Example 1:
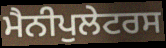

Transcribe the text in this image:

ਮੈਨੀਪੁਲੇਟਰਸ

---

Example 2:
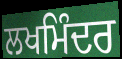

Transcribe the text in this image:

ਲਖਮਿੰਦਰ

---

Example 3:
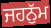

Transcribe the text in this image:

ਜਹਨੁੱਮ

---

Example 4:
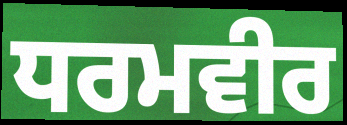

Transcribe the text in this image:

ਧਰਮਵੀਰ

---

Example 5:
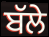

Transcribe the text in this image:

ਬੱਲੇ